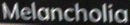
Melancholia